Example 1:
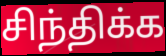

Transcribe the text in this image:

சிந்திக்க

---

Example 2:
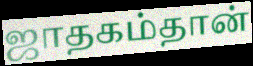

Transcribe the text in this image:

ஜாதகம்தான்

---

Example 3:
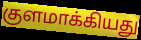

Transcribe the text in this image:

குளமாக்கியது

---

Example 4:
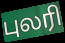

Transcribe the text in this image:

புலரி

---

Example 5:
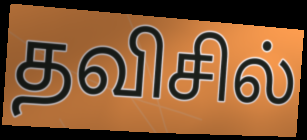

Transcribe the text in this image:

தவிசில்